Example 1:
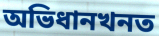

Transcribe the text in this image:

অভিধানখনত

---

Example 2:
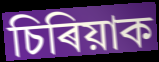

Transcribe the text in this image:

চিৰিয়াক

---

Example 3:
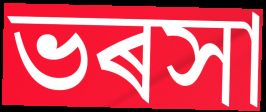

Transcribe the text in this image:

ভৰসা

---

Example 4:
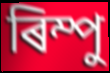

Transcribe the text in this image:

ৰিম্পু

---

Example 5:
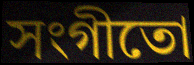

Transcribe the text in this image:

সংগীতো